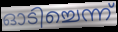
ഓടിച്ചെന്ന്